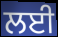
ਲਈ